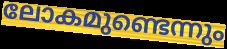
ലോകമുണ്ടെന്നും